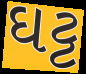
ઘટ્ટ